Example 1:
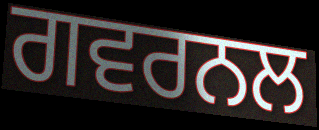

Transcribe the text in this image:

ਗਵਰਨਲ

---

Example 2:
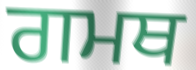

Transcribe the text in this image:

ਗਮਥ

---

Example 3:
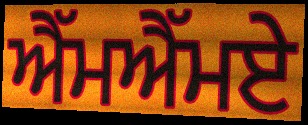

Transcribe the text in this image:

ਐੱਮਐੱਮਏ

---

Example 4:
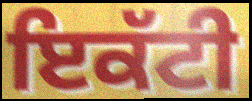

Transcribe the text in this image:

ਇਕੱਟੀ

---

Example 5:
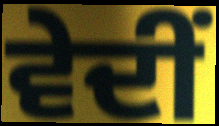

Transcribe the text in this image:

ਵੇਦੀਂ